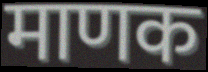
माणक